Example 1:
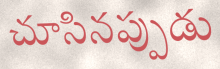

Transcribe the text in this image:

చూసినప్పుడు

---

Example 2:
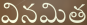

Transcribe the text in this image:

వినమిత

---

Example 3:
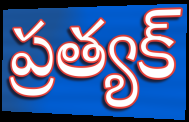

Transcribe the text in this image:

ప్రత్యక్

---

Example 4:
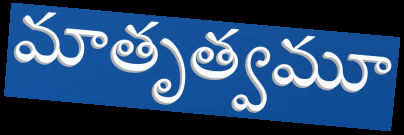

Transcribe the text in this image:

మాతృత్వమూ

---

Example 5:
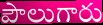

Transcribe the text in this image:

పౌలుగారు